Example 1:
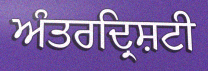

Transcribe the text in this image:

ਅੰਤਰਦ੍ਰਿਸ਼ਟੀ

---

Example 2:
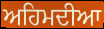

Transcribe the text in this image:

ਅਹਿਮਦੀਆ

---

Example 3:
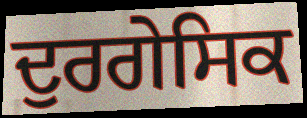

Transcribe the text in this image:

ਦੁਰਗੇਸਿਕ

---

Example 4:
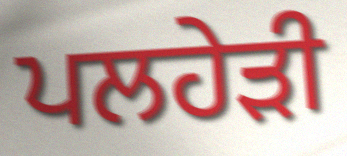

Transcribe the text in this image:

ਪਲਹੇੜੀ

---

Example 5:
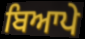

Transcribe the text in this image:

ਬਿਆਪੇ